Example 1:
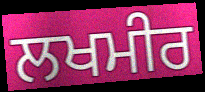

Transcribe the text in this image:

ਲਖਮੀਰ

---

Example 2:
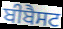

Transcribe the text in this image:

ਬੀਬੈਸਟ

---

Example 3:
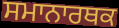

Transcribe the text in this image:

ਸਮਾਨਾਰਥਕ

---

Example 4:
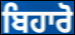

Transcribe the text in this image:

ਬਿਹਾਰੋ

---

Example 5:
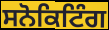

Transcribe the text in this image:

ਸਨੋਕਿਟਿੰਗ